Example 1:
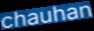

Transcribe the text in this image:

chauhan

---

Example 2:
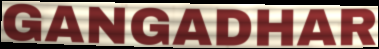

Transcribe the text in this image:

GANGADHAR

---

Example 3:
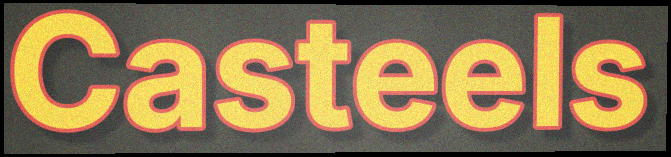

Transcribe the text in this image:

Casteels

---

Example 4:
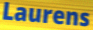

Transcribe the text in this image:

Laurens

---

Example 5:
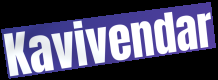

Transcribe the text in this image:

Kavivendar